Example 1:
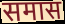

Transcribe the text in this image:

समास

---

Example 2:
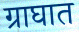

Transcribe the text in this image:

ग्राघात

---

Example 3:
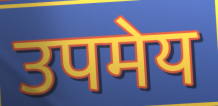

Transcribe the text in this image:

उपमेय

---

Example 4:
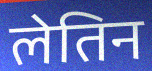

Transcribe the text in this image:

लेतिन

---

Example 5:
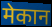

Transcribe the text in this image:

मेकान